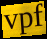
vpf